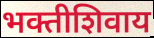
भक्तीशिवाय